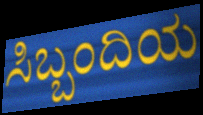
ಸಿಬ್ಬಂದಿಯ